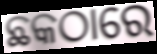
ଛକଠାରେ